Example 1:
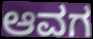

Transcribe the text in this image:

ಆವಗ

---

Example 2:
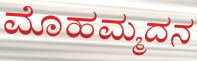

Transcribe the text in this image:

ಮೊಹಮ್ಮದನ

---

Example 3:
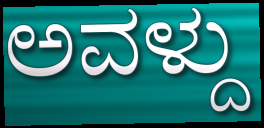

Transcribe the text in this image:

ಅವಳ್ದು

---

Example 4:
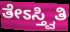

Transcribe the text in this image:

ತೇಽಸ್ತ್ವಿತಿ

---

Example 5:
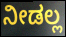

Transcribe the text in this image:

ನೀಡಲ್ಲ